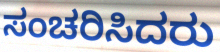
ಸಂಚರಿಸಿದರು